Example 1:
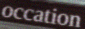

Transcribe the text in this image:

occation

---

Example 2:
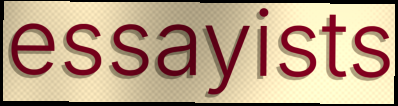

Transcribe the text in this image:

essayists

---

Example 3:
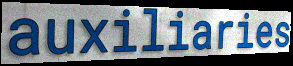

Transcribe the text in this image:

auxiliaries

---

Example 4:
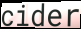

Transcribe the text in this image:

cider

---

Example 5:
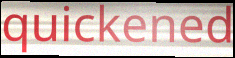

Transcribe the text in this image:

quickened